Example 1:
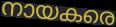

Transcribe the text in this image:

നായകരെ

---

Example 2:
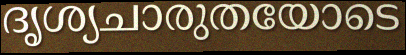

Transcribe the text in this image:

ദൃശ്യചാരുതയോടെ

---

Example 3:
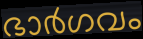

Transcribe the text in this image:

ഭാർഗവം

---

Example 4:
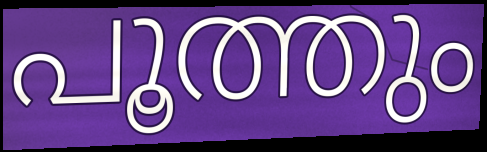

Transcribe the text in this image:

പൂത്തും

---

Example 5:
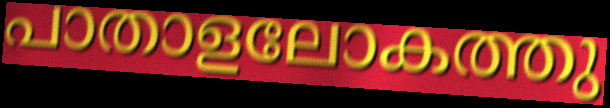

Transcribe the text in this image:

പാതാളലോകത്തു